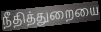
நீதித்துறையை